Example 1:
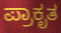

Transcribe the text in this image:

ಪ್ರಾಕೃತ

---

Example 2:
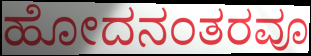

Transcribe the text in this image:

ಹೋದನಂತರವೂ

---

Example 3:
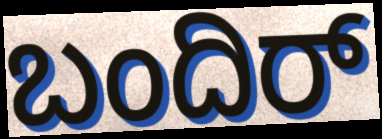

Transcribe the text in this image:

ಬಂದಿರ್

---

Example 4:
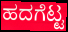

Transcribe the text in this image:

ಹದಗೆಟ್ಟ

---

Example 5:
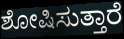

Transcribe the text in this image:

ಶೋಷಿಸುತ್ತಾರೆ